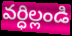
వర్ధిల్లండి